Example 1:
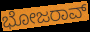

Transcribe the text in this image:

ಭೋಜರಾವ್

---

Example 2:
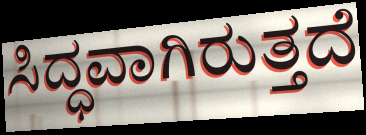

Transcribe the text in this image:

ಸಿದ್ಧವಾಗಿರುತ್ತದೆ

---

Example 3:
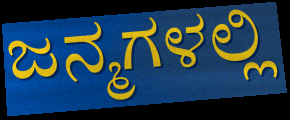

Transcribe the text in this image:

ಜನ್ಮಗಳಲ್ಲಿ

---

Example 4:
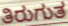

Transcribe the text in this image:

ತಿರುಗುತ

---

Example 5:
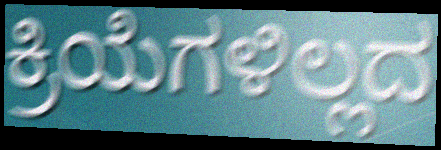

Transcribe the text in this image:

ಕ್ರಿಯೆಗಳಿಲ್ಲದ